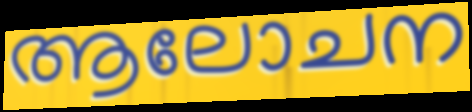
ആലോചന